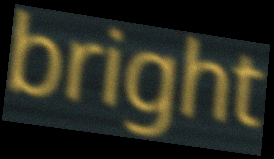
bright